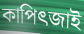
কাপিৎজাই